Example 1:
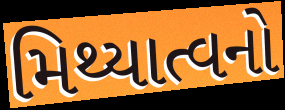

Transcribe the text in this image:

મિથ્યાત્વનો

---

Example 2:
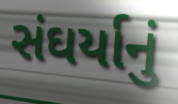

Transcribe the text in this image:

સંઘર્યાનું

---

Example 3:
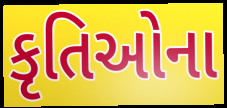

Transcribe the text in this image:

કૃતિઓના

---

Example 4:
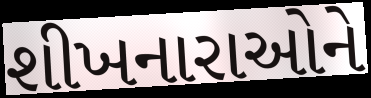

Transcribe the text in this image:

શીખનારાઓને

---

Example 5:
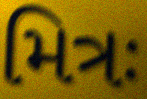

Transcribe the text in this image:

મિત્રઃ